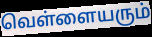
வெள்ளையரும்